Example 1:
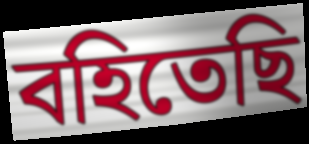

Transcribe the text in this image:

বহিতেছি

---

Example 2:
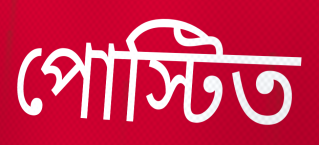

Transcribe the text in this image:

পোস্টিত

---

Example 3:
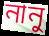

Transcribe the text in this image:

নানু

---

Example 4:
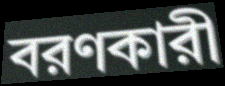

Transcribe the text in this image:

বরণকারী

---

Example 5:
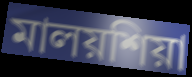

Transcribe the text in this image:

মালয়শিয়া